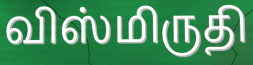
விஸ்மிருதி